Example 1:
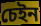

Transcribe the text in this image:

চেইন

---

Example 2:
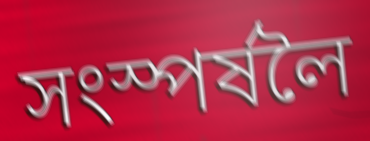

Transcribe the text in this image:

সংস্পৰ্ষলৈ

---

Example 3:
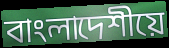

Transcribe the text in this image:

বাংলাদেশীয়ে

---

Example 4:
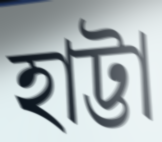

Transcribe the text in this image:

হাট্টা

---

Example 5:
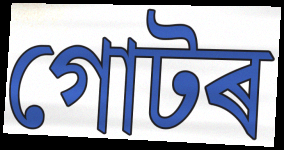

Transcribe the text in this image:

গোটৰ